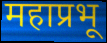
महाप्रभू